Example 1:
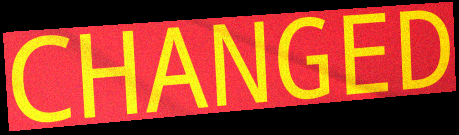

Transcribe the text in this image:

CHANGED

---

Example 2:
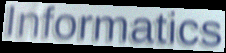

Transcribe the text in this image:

Informatics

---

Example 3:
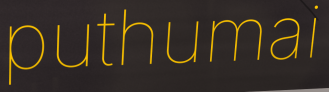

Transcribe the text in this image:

puthumai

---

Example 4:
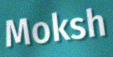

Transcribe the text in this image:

Moksh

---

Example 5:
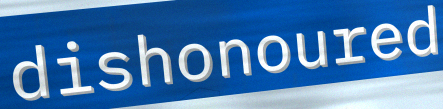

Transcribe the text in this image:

dishonoured